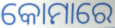
କୋମାରେ